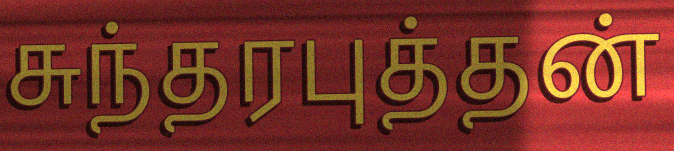
சுந்தரபுத்தன்